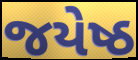
જયેષ્ઠ